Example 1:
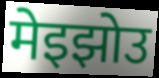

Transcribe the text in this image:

मेइझोउ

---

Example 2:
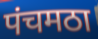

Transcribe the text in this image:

पंचमठा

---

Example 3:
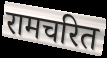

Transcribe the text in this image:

रामचरित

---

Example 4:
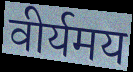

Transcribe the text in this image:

वीर्यमय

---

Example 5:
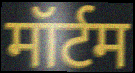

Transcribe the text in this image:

मॉर्टम